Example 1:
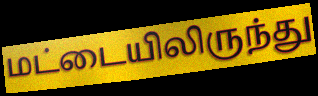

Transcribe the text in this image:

மட்டையிலிருந்து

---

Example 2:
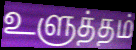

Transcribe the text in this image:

உளுத்தம்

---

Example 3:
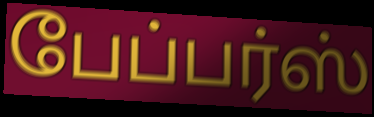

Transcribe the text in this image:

பேப்பர்ஸ்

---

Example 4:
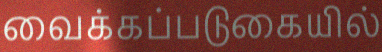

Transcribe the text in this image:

வைக்கப்படுகையில்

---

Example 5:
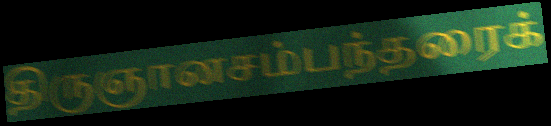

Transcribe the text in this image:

திருஞானசம்பந்தரைக்